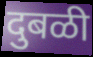
दुबळी